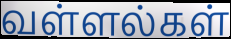
வள்ளல்கள்